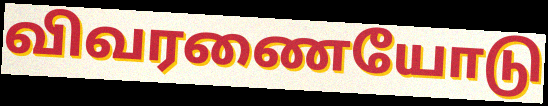
விவரணையோடு